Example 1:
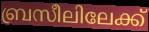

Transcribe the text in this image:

ബ്രസീലിലേക്ക്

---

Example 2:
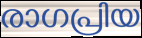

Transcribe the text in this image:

രാഗപ്രിയ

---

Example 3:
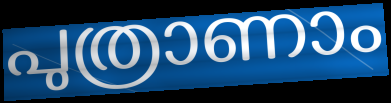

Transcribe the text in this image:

പുത്രാണാം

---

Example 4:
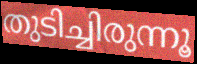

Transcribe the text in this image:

തുടിച്ചിരുന്നൂ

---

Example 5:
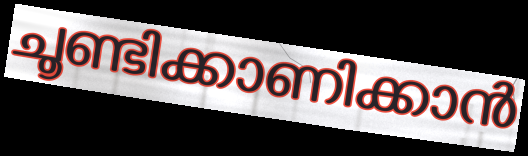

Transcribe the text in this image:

ചൂണ്ടിക്കാണിക്കാൻ